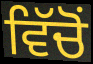
ਵਿੱਚੋੰ